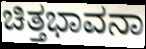
ಚಿತ್ತಭಾವನಾ